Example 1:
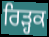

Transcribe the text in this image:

ਰਿੜ੍ਹਕ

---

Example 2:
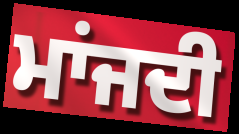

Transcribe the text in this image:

ਮਾਂਜਦੀ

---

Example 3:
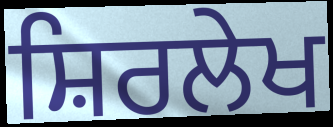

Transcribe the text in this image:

ਸ਼ਿਰਲੇਖ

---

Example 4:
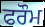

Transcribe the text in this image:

ਫਰੌਮ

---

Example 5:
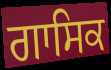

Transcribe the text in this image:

ਗਾਸਿਕ